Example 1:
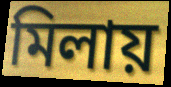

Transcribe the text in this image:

মিলায়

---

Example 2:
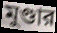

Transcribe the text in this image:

মুণ্ডার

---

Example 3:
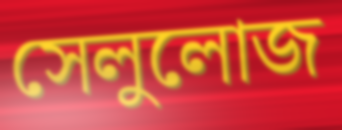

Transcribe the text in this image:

সেলুলোজ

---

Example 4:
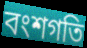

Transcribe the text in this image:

বংশগতি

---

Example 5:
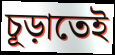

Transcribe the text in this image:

চূড়াতেই